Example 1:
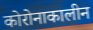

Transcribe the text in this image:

कोरोनाकालीन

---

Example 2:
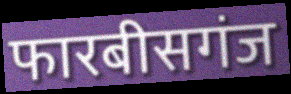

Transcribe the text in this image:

फारबीसगंज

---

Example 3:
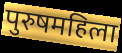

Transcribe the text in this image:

पुरुषमहिला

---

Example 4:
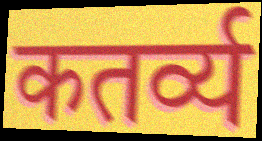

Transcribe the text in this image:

कतर्व्य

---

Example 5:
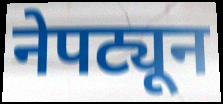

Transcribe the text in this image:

नेपट्यून